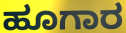
ಹೂಗಾರ